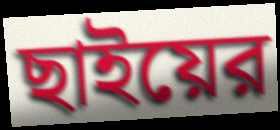
ছাইয়ের